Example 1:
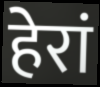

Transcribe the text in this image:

हेरां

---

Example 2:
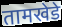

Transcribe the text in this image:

तामखेडे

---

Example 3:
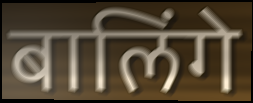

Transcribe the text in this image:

बालिंगे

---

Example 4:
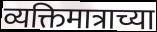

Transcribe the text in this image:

व्यक्तिमात्राच्या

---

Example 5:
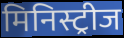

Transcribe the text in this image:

मिनिस्ट्रीज